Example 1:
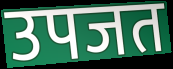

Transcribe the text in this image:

उपजत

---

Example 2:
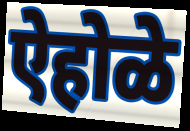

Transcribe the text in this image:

ऐहोळे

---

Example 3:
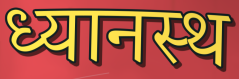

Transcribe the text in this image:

ध्यानस्थ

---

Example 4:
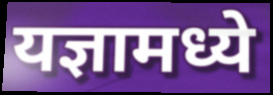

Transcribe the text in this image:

यज्ञामध्ये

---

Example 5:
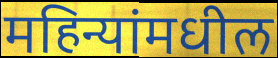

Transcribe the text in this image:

महिन्यांमधील